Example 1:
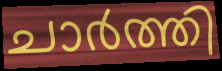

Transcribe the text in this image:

ചാർത്തി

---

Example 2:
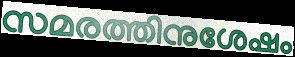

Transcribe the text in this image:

സമരത്തിനുശേഷം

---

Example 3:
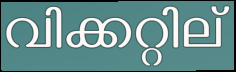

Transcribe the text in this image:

വിക്കറ്റില്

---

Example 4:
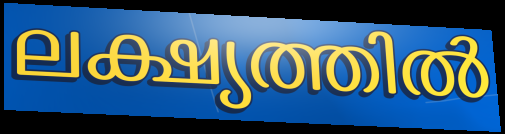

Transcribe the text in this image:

ലക്ഷ്യത്തിൽ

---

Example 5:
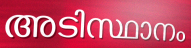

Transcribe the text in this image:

അടിസ്ഥാനം